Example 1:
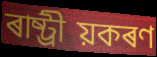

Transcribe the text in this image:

ৰাষ্ট্ৰীয়কৰণ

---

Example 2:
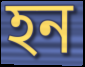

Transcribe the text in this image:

হন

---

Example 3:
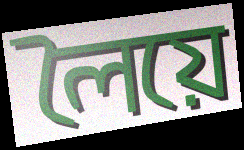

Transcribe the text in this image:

লৈয়ে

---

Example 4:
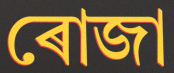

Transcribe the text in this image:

ৰোজা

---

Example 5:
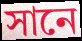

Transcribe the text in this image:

সানে